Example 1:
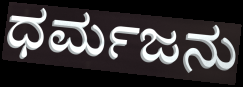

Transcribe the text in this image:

ಧರ್ಮಜನು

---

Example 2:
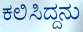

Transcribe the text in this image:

ಕಲಿಸಿದ್ದನು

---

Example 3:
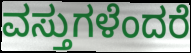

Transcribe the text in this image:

ವಸ್ತುಗಳೆಂದರೆ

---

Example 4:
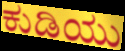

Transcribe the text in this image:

ಕುಡಿಯು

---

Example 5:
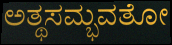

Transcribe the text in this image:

ಅತ್ಥಸಮ್ಭವತೋ